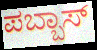
ಪಬ್ಬಾಸ್